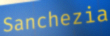
Sanchezia